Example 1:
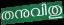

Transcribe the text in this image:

തനുവിതു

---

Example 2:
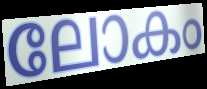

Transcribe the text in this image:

ലോകം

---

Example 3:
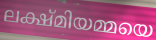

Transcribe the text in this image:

ലക്ഷ്മിയമ്മയെ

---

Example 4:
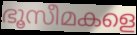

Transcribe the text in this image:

ഭൂസീമകളെ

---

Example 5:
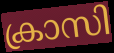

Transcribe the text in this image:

ക്രാസി